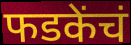
फडकेंचं